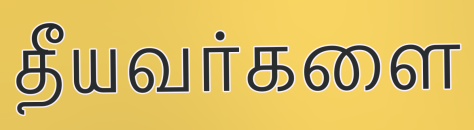
தீயவர்களை